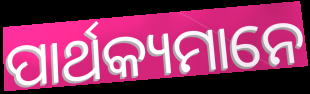
ପାର୍ଥକ୍ୟମାନେ